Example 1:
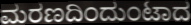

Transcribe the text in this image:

ಮರಣದಿಂದುಂಟಾದ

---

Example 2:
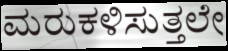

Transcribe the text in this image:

ಮರುಕಳಿಸುತ್ತಲೇ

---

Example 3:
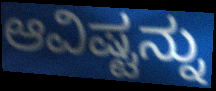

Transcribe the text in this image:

ಆವಿಷ್ಟನ್ನು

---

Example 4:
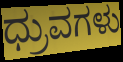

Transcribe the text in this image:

ಧ್ರುವಗಳು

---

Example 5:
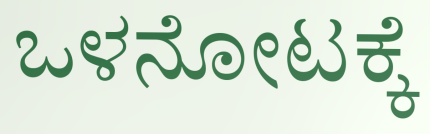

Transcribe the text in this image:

ಒಳನೋಟಕ್ಕೆ